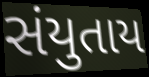
સંયુતાય